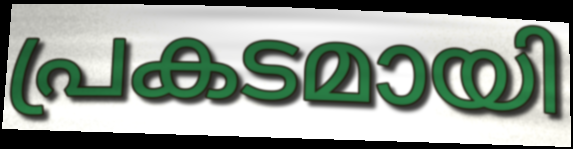
പ്രകടമായി